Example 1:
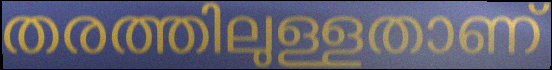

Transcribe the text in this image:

തരത്തിലുള്ളതാണ്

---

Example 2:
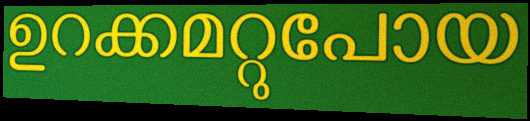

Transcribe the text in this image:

ഉറക്കമറ്റുപോയ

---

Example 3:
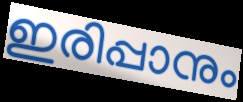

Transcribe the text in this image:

ഇരിപ്പാനും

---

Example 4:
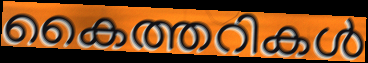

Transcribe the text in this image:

കൈത്തറികൾ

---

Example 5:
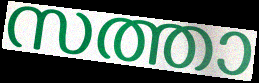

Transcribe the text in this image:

സത്താ